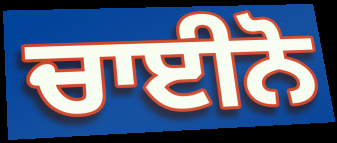
ਚਾਈਨੋ